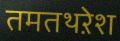
तमतथऱेश